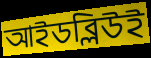
আইডব্লিউই